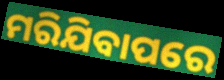
ମରିଯିବାପରେ